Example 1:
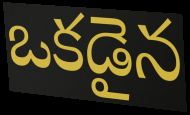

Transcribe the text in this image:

ఒకడైన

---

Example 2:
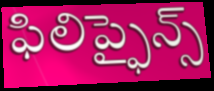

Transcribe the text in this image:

ఫిలిప్ఫైన్స్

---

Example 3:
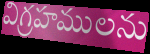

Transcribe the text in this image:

విగ్రహములను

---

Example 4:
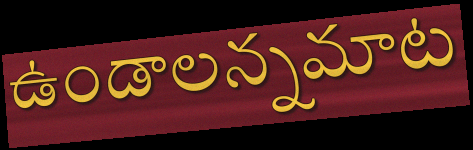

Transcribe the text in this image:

ఉండాలన్నమాట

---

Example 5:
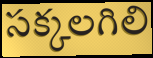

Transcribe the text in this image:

సక్కలగిలి